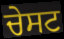
ਚੇਸਟ